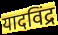
यादविंद्र